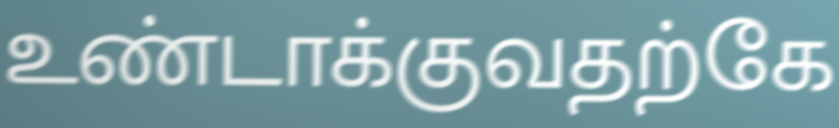
உண்டாக்குவதற்கே